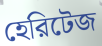
হেরিটেজ